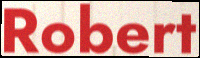
Robert